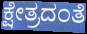
ಕ್ಷೇತ್ರದಂತೆ